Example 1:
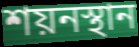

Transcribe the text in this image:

শয়নস্থান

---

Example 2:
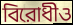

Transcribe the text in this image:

বিরোধীও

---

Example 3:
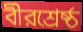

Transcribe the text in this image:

বীরশ্রেষ্ঠ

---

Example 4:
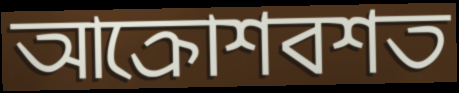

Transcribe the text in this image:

আক্রোশবশত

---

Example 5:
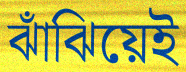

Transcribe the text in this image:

ঝাঁঝিয়েই